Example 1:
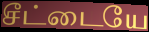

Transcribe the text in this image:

சீட்டையே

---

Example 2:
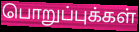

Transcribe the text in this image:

பொறுப்புக்கள்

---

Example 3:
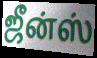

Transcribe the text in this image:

ஜீன்ஸ்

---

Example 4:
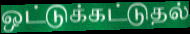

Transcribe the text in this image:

ஒட்டுக்கட்டுதல்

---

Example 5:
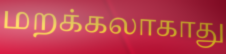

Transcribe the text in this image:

மறக்கலாகாது